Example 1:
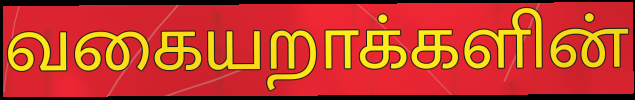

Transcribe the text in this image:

வகையறாக்களின்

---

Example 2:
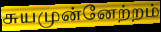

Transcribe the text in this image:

சுயமுன்னேற்றம்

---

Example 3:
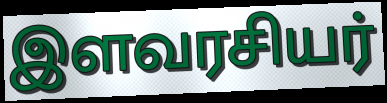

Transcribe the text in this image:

இளவரசியர்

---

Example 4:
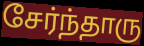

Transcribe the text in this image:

சேர்ந்தாரு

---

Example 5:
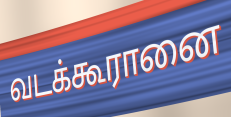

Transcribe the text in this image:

வடக்கூரானை